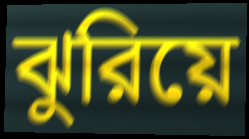
ঝুরিয়ে